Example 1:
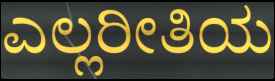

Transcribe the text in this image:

ಎಲ್ಲರೀತಿಯ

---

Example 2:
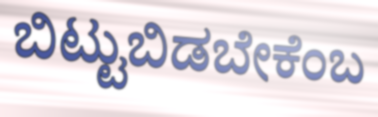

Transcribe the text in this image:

ಬಿಟ್ಟುಬಿಡಬೇಕೆಂಬ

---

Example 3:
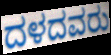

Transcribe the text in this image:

ದಳದವರು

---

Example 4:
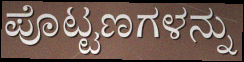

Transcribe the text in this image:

ಪೊಟ್ಟಣಗಳನ್ನು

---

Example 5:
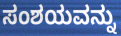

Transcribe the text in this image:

ಸಂಶಯವನ್ನು